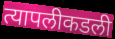
त्यापलीकडली